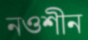
নওশীন